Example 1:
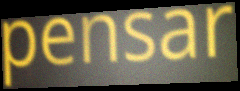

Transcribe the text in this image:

pensar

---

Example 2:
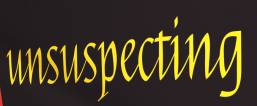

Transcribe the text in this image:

unsuspecting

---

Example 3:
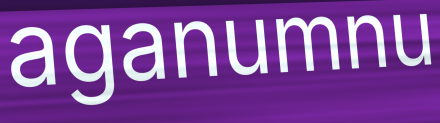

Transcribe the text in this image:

aganumnu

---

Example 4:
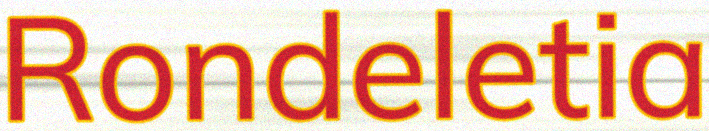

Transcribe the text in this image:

Rondeletia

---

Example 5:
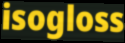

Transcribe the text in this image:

isogloss